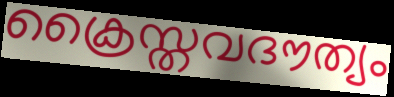
ക്രൈസ്തവദൗത്യം